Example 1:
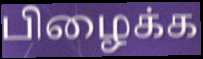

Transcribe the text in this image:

பிழைக்க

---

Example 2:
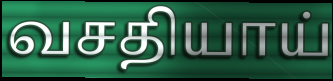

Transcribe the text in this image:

வசதியாய்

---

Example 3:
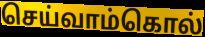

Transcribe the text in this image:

செய்வாம்கொல்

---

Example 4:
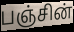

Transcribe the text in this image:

பஞ்சின்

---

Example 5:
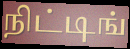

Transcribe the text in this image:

நிட்டிங்